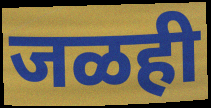
जळही